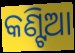
କଣ୍ଟିଆ